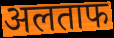
अलताफ